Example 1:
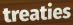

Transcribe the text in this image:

treaties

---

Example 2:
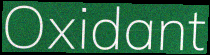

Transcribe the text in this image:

Oxidant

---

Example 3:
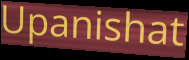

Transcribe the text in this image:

Upanishat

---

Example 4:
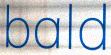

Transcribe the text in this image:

bald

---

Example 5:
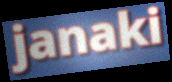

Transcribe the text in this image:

janaki